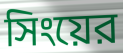
সিংয়ের